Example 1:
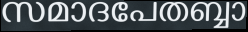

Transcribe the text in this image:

സമാദപേതബ്ബാ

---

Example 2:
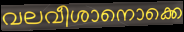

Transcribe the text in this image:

വലവീശാനൊക്കെ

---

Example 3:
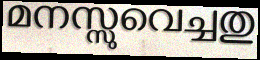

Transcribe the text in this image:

മനസ്സുവെച്ചതു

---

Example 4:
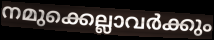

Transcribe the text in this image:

നമുക്കെല്ലാവർക്കും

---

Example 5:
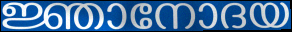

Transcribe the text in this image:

ജ്ഞാനോദയ